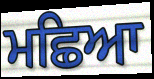
ਮਛਿਆ